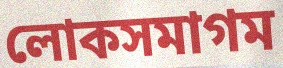
লোকসমাগম